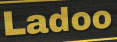
Ladoo